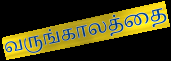
வருங்காலத்தை